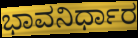
ಭಾವನಿರ್ಧಾರ